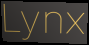
Lynx